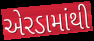
એરડામાંથી